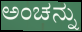
ಅಂಚನ್ನು